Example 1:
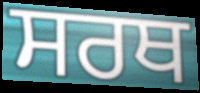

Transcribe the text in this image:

ਸਰਥ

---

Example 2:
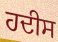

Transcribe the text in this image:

ਹਦੀਸ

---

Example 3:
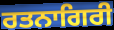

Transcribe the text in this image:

ਰਤਨਾਗਿਰੀ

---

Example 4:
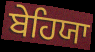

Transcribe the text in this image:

ਬੇਹਿਯਾ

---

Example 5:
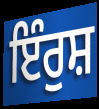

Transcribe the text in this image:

ਇੰਰੁਸ਼